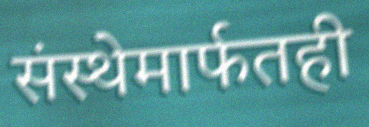
संस्थेमार्फतही